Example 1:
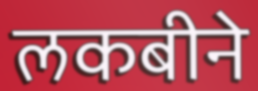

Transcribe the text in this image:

लकबीने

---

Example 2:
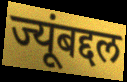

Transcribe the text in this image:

ज्यूंबद्दल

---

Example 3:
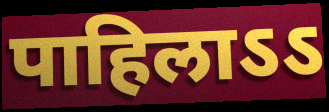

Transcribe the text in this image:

पाहिलाऽऽ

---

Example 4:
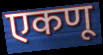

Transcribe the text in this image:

एकणू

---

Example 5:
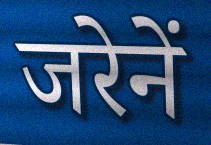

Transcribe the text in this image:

जरेनें